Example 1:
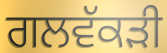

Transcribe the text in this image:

ਗਲਵੱਕਡ਼ੀ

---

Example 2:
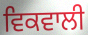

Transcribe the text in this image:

ਵਿਕਵਾਲੀ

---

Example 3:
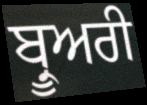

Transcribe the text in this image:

ਬ੍ਰੂਅਰੀ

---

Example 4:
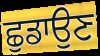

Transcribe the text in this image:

ਛੁਡਾਉਣ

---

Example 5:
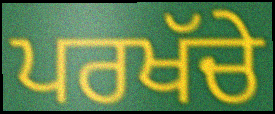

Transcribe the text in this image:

ਪਰਖੱਚੇ